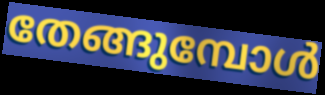
തേങ്ങുമ്പോൾ